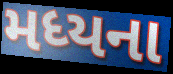
મધ્યના